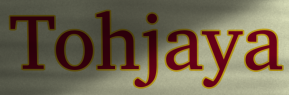
Tohjaya